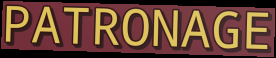
PATRONAGE